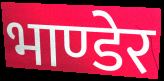
भाण्‍डेर